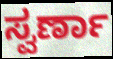
ಸ್ವರ್ಣಾ